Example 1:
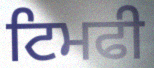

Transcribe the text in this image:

ਟਿਮਫੀ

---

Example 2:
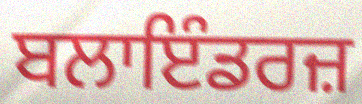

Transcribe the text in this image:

ਬਲਾਇੰਡਰਜ਼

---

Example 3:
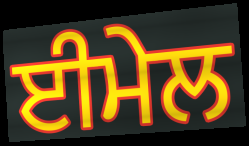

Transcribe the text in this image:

ਈਮੇਲ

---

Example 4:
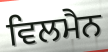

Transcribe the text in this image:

ਵਿਲਮੈਨ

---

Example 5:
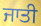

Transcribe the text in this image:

ਜਾਤੀ